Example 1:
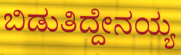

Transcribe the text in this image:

ಬಿಡುತಿದ್ದೇನಯ್ಯ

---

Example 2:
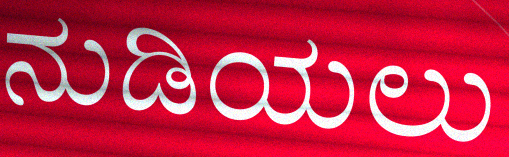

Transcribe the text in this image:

ನುಡಿಯಲು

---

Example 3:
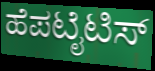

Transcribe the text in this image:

ಹೆಪಟೈಟಿಸ್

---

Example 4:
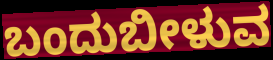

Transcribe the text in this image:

ಬಂದುಬೀಳುವ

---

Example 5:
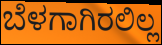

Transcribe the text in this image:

ಬೆಳಗಾಗಿರಲಿಲ್ಲ